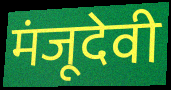
मंजूदेवी